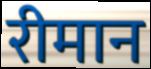
रीमान